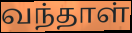
வந்தாள்